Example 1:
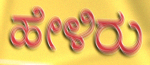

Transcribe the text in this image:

ಹೇಳಿರು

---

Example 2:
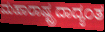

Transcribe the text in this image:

ಮಹಾರಾಷ್ಟ್ರದಾದ್ಯಂತ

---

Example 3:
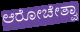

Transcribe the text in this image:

ಆರೋಚೇತ್ವಾ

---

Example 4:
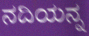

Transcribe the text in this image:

ನದಿಯನ್ನ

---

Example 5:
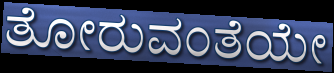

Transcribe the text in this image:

ತೋರುವಂತೆಯೇ